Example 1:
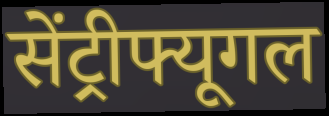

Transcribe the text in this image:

सेंट्रीफ्यूगल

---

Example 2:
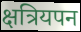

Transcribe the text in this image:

क्षत्रियपन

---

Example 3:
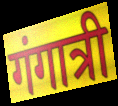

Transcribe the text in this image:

गंगात्री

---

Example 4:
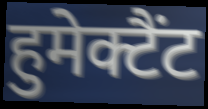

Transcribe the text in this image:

हुमेक्टैंट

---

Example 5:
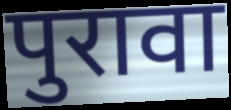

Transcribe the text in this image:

पुरावा